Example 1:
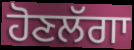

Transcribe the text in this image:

ਹੋਣਲੱਗਾ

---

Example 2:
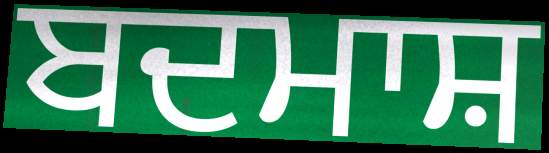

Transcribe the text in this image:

ਬਦਮਾਸ਼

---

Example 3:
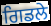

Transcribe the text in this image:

ਗਿਡਲੇ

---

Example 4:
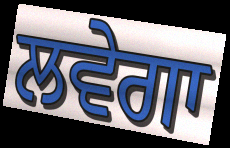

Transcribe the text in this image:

ਲਵੇਗਾ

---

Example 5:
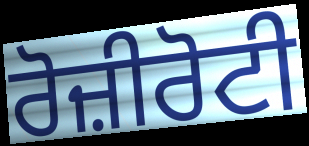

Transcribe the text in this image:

ਰੋਜ਼ੀਰੋਟੀ